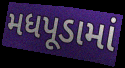
મધપૂડામાં